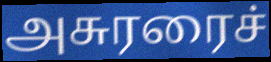
அசுரரைச்